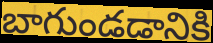
బాగుండడానికి